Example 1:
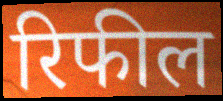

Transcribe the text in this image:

रिफील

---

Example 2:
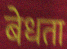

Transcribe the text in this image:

बेधता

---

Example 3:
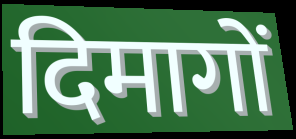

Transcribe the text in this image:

दिमागों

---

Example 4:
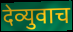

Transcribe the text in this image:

देव्युवाच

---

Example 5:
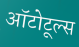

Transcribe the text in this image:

ऑटोटूल्स